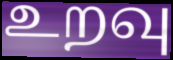
உறவு